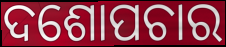
ଦଶୋପଚାର